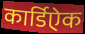
कार्डिऐक